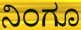
ನಿಂಗೂ